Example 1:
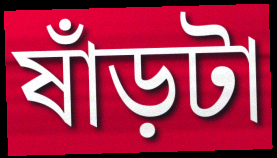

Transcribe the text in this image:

ষাঁড়টা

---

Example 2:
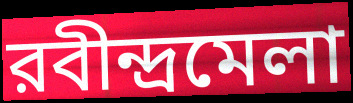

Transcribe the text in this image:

রবীন্দ্রমেলা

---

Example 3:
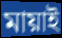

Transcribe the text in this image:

মায়াই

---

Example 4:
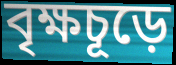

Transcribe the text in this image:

বৃক্ষচূড়ে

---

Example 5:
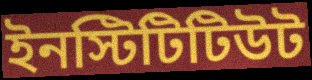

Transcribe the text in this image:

ইনস্টিটিটিউট